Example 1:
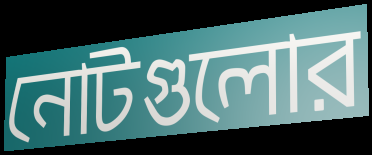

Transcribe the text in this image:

নোটগুলোর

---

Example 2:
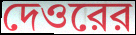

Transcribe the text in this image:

দেওরের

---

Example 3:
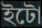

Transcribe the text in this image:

ইটো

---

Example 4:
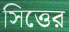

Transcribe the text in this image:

সিত্তের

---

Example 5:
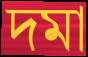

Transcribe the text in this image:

দমা